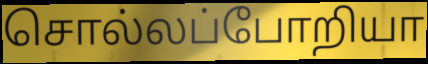
சொல்லப்போறியா